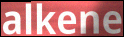
alkene